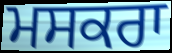
ਮਸਕਰਾ